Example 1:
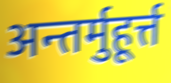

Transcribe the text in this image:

अन्तर्मुहूर्त्त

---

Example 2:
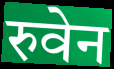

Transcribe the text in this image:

रुवेन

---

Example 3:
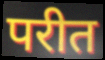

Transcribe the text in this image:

परीत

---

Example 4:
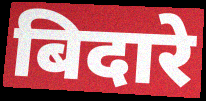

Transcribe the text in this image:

बिदारे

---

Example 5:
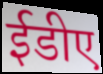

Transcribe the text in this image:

ईडीए